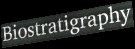
Biostratigraphy